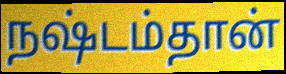
நஷ்டம்தான்